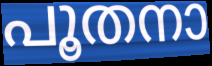
പൂതനാ